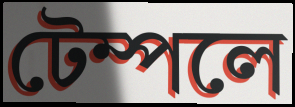
টেম্পলে